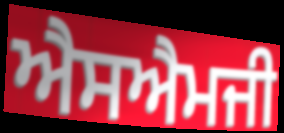
ਐਸਐਮਜੀ